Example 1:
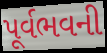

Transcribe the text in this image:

પૂર્વભવની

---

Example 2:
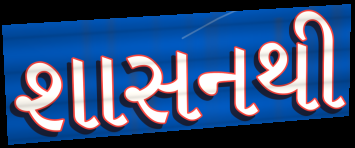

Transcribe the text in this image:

શાસનથી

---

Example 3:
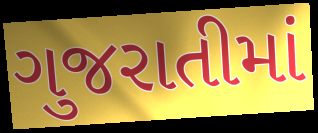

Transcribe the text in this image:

ગુજરાતીમાં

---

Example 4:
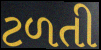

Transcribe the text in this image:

ટળતી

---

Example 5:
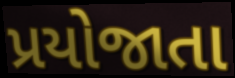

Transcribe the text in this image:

પ્રયોજાતા